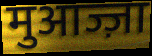
मुआज्ज़ा